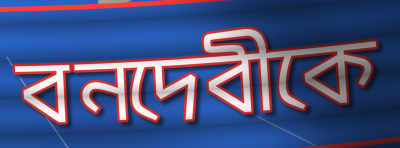
বনদেবীকে